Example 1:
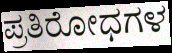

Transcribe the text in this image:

ಪ್ರತಿರೋಧಗಳ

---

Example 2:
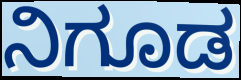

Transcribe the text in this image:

ನಿಗೂಡ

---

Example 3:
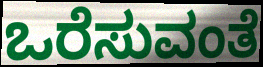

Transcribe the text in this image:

ಒರೆಸುವಂತೆ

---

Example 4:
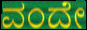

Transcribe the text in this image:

ವಂದೇ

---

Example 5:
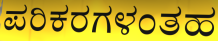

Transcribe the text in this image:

ಪರಿಕರಗಳಂತಹ